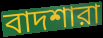
বাদশারা